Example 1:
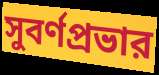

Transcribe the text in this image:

সুবর্ণপ্রভার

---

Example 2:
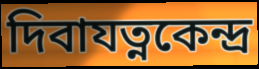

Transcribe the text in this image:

দিবাযত্নকেন্দ্র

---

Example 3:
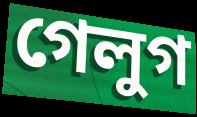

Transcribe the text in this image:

গেলুগ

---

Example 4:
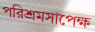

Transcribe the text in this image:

পরিশ্রমসাপেক্ষ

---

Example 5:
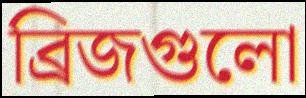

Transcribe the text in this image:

ব্রিজগুলো